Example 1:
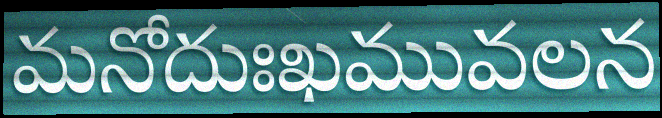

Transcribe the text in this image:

మనోదుఃఖమువలన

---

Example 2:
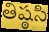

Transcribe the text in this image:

తిష్ఠసి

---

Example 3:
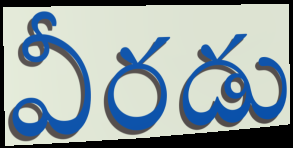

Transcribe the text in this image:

వీరడు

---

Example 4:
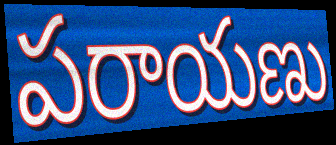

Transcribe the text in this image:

పరాయణు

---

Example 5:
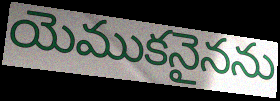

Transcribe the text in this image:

యెముకనైనను